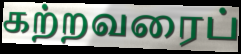
கற்றவரைப்